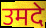
उमदे